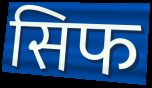
सिफ